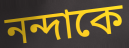
নন্দাকে